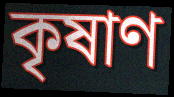
কৃষাণ